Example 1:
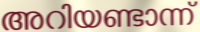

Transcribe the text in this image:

അറിയണ്ടാന്ന്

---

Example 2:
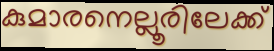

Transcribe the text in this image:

കുമാരനെല്ലൂരിലേക്ക്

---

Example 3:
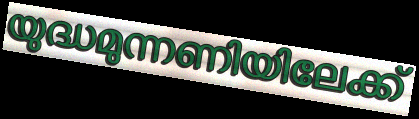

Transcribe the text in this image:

യുദ്ധമുന്നണിയിലേക്ക്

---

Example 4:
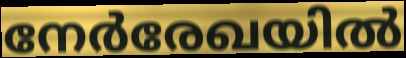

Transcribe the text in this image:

നേർരേഖയിൽ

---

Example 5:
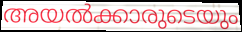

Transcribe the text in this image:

അയൽക്കാരുടെയും